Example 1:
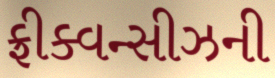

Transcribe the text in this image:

ફ્રીક્વન્સીઝની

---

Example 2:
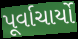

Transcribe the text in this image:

પૂર્વાચાર્યો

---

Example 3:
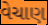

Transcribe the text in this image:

વેચાણ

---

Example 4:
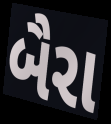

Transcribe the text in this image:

બૈરા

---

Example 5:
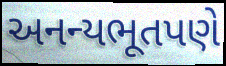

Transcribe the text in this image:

અનન્યભૂતપણે